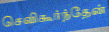
செவிகூர்ந்தேன்